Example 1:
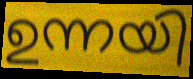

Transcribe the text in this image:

ഉന്നയി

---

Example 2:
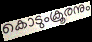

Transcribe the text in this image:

കൊടുംക്രൂരനും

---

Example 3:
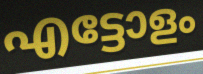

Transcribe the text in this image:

എട്ടോളം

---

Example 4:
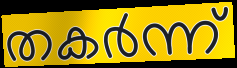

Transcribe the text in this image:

തകർന്ന്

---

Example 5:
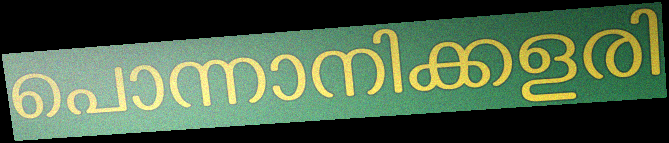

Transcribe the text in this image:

പൊന്നാനിക്കളരി